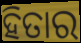
ହିତାର